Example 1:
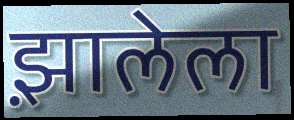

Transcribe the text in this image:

झ़ालेला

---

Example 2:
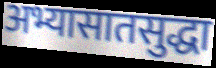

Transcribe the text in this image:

अभ्यासातसुद्धा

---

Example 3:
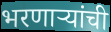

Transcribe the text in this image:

भरणाऱ्यांची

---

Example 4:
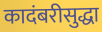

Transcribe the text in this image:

कादंबरीसुद्धा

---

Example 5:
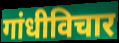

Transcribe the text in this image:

गांधीविचार